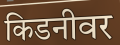
किडनीवर